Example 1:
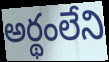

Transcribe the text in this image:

అర్థంలేని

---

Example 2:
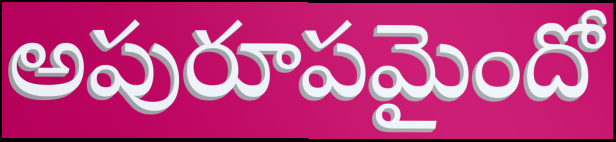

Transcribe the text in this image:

అపురూపమైందో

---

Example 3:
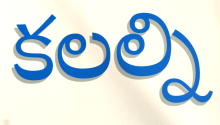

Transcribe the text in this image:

కలల్ని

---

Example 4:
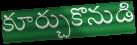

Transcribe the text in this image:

కూర్చుకొనుడి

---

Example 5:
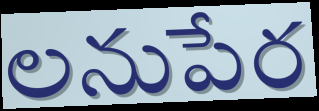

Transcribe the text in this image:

లనుపేర